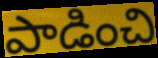
పాడించి